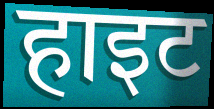
हाइट